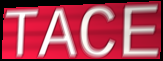
TACE